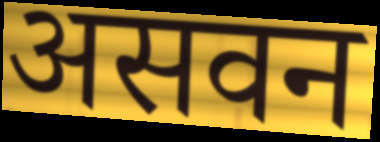
असवन